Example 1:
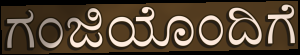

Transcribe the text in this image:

ಗಂಜಿಯೊಂದಿಗೆ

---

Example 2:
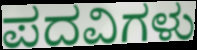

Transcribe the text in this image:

ಪದವಿಗಳು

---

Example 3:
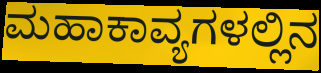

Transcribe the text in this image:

ಮಹಾಕಾವ್ಯಗಳಲ್ಲಿನ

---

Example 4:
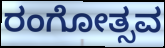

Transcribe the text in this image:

ರಂಗೋತ್ಸವ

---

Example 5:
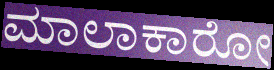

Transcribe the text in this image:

ಮಾಲಾಕಾರೋ